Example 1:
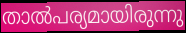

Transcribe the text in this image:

താൽപര്യമായിരുന്നു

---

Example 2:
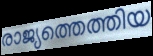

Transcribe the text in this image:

രാജ്യത്തെത്തിയ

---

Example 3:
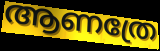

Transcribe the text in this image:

ആണത്രേ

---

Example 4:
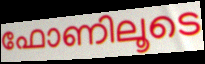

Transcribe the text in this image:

ഫോണിലൂടെ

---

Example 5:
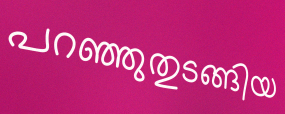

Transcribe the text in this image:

പറഞ്ഞുതുടങ്ങിയ